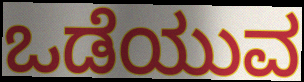
ಒಡೆಯುವ